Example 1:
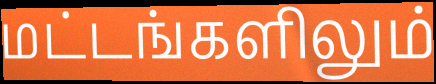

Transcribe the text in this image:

மட்டங்களிலும்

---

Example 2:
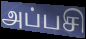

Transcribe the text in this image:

அப்பசி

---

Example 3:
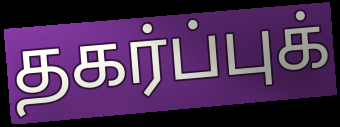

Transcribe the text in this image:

தகர்ப்புக்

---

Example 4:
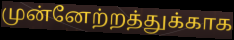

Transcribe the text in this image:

முன்னேற்றத்துக்காக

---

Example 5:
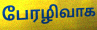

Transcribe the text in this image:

பேரழிவாக